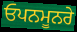
ਓਪਨਮੂਨਰੇ